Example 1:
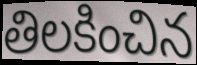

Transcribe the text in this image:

తిలకించిన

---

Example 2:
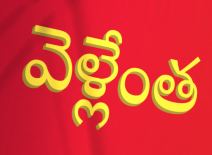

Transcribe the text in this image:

వెళ్లేంత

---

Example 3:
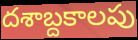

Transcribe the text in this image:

దశాబ్దకాలపు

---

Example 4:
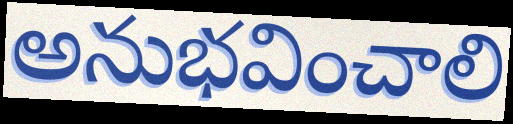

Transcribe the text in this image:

అనుభవించాలి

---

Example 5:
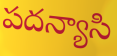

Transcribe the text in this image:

పదన్యాసి